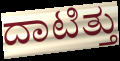
ದಾಟಿತ್ತು